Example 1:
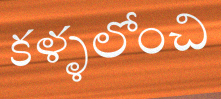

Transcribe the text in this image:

కళ్ళలోంచి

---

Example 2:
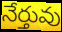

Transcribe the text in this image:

నేర్తువు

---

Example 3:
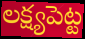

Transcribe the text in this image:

లక్ష్యపెట్ట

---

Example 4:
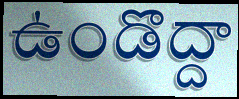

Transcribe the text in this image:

ఉండొద్దా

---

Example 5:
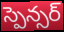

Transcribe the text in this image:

స్పెన్సర్